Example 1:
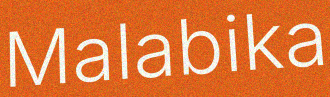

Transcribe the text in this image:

Malabika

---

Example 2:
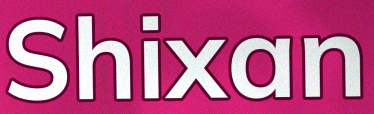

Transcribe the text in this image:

Shixan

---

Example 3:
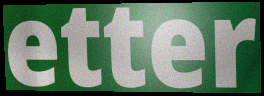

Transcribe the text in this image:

etter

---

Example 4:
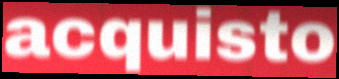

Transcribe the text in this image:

acquisto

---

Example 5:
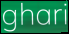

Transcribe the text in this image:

ghari